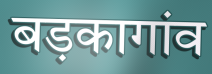
बड़कागांव